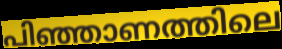
പിഞ്ഞാണത്തിലെ